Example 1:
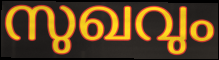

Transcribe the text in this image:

സുഖവും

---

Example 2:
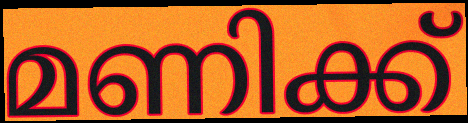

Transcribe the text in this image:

മണിക്ക്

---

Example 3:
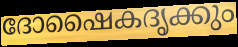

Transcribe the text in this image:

ദോഷൈകദൃക്കും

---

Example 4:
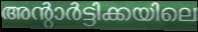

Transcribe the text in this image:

അന്റാർട്ടിക്കയിലെ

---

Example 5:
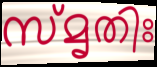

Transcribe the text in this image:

സ്മൃതിഃ